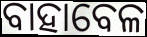
ବାହାବେଳ